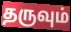
தருவும்